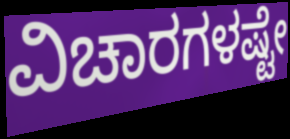
ವಿಚಾರಗಳಷ್ಟೇ